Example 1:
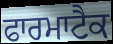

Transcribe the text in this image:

ਫਾਰਮਾਟੈਕ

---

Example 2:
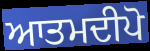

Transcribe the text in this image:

ਆਤਮਦੀਪੋ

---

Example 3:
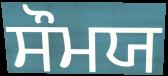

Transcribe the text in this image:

ਸੌਮਯ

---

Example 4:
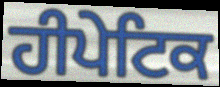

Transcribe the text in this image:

ਹੀਪੇਟਿਕ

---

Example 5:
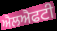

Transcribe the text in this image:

ਐਲਐਫਟੀ